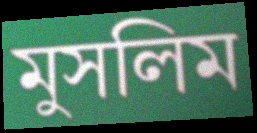
মুসলিম